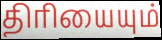
திரியையும்